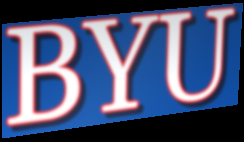
BYU